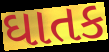
ઘાતક